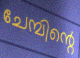
ചേമ്പിന്റെ